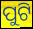
ପୁଟି